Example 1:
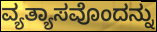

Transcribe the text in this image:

ವ್ಯತ್ಯಾಸವೊಂದನ್ನು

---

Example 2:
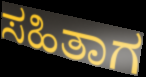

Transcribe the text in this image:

ಸಹಿತಾಗ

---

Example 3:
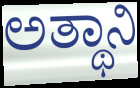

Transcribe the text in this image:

ಅತ್ಥಾನಿ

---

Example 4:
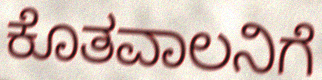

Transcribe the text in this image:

ಕೊತವಾಲನಿಗೆ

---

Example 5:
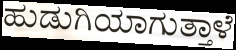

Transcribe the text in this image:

ಹುಡುಗಿಯಾಗುತ್ತಾಳೆ